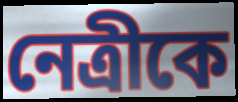
নেত্রীকে